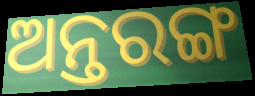
ଅନ୍ତରଙ୍ଗ